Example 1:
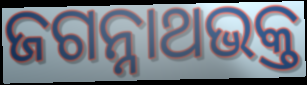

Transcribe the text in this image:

ଜଗନ୍ନାଥଭକ୍ତ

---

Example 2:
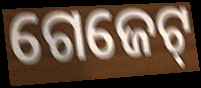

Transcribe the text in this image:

ଗେଜେଟ୍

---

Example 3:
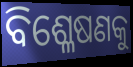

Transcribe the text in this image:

ବିଶ୍ଳେଷଣକୁ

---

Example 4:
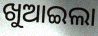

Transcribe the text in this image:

ଖୁଆଇଲା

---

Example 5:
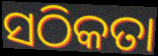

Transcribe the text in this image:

ସଠିକତା